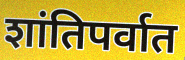
शांतिपर्वात